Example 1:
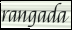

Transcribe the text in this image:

rangada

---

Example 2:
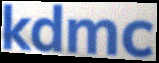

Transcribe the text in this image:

kdmc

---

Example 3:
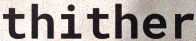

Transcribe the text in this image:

thither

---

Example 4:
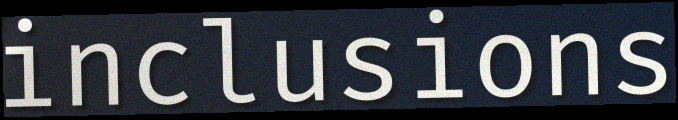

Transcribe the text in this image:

inclusions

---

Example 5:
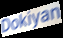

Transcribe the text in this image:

Dokiyan